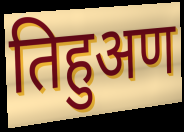
तिहुअण